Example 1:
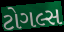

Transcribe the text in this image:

ટોગલ્સ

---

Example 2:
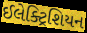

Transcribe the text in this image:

ઈલેક્ટ્રિશિયન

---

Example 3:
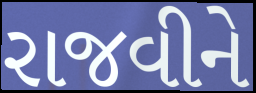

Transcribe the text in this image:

રાજવીને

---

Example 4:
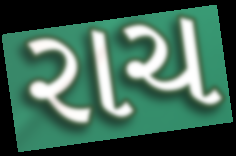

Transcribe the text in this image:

રાચ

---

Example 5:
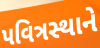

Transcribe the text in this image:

પવિત્રસ્થાને